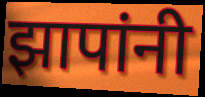
झापांनी